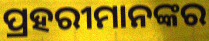
ପ୍ରହରୀମାନଙ୍କର